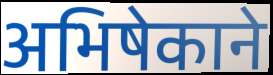
अभिषेकाने